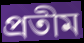
প্রতীম